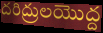
దరిద్రులయొద్ద